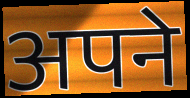
अपने